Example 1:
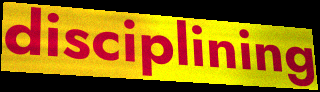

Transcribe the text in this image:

disciplining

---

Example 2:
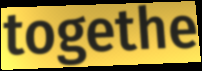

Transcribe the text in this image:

togethe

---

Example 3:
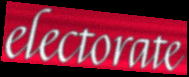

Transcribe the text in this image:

electorate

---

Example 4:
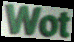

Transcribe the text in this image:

Wot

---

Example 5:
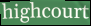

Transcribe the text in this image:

highcourt